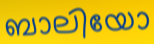
ബാലിയോ